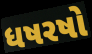
ધષરષો